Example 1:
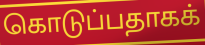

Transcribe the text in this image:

கொடுப்பதாகக்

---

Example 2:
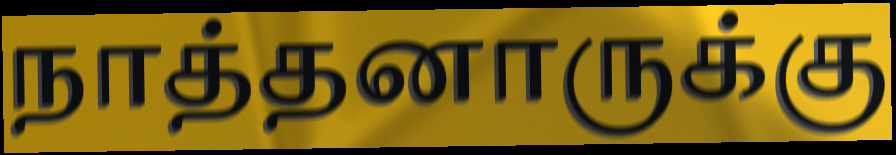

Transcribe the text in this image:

நாத்தனாருக்கு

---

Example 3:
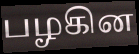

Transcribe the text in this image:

பழகின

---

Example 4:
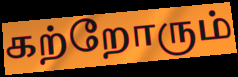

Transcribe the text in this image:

கற்றோரும்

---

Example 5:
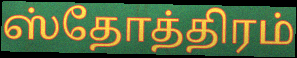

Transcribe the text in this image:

ஸ்தோத்திரம்